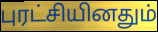
புரட்சியினதும்